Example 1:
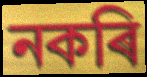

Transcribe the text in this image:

নকৰি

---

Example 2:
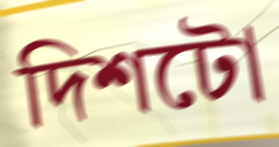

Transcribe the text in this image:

দিশটো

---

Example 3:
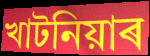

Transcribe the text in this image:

খাটনিয়াৰ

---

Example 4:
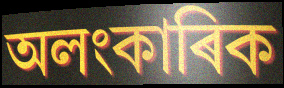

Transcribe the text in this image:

অলংকাৰিক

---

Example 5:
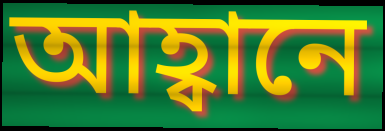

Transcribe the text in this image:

আহ্বানে